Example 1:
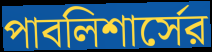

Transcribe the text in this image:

পাবলিশার্সের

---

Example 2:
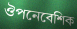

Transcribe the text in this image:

ঔপনেবেশিক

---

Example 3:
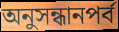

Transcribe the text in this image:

অনুসন্ধানপর্ব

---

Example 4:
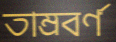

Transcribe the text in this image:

তাম্রবর্ণ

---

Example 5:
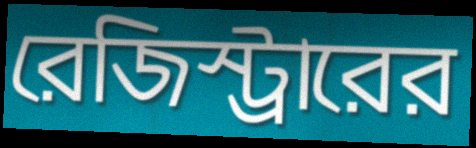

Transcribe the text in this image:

রেজিস্ট্রারের